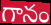
గానం